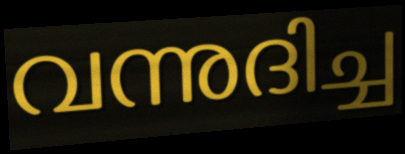
വന്നുദിച്ച